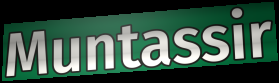
Muntassir